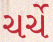
ચર્ચે